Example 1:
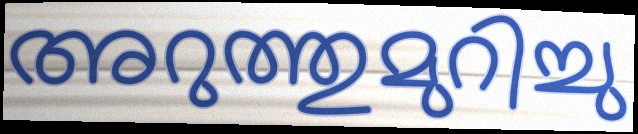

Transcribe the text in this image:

അറുത്തുമുറിച്ചു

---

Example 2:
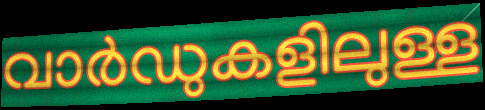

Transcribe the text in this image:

വാർഡുകളിലുള്ള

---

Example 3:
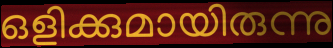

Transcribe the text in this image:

ഒളിക്കുമായിരുന്നു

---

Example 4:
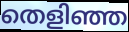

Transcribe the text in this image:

തെളിഞ്ഞ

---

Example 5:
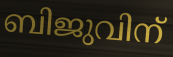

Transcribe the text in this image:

ബിജുവിന്